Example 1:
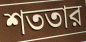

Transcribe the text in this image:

শততার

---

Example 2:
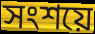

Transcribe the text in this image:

সংশয়ে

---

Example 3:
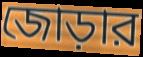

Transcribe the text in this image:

জোড়ার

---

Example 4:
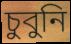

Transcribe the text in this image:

চুবুনি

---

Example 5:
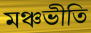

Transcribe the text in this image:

মঞ্চভীতি